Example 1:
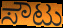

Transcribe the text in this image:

ಸೌಟು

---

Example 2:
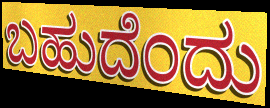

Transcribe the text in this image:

ಬಹುದೆಂದು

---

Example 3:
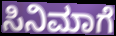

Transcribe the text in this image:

ಸಿನಿಮಾಗೆ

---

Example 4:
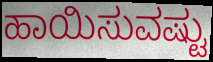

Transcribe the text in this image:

ಹಾಯಿಸುವಷ್ಟು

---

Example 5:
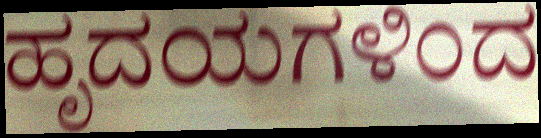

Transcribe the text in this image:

ಹೃದಯಗಳಿಂದ